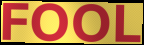
FOOL